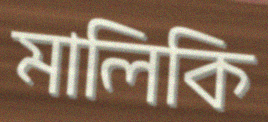
মালিকি